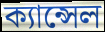
ক্যান্সেল